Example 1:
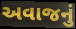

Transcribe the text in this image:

અવાજનું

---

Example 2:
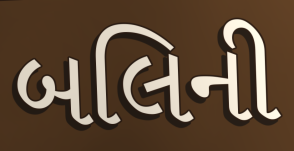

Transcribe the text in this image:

બલિની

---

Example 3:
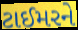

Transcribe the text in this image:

ટાઈમરને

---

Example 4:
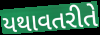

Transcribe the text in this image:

યથાવતરીતે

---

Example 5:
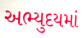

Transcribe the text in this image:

અભ્યુદયમાં